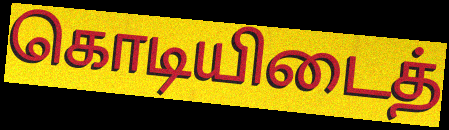
கொடியிடைத்